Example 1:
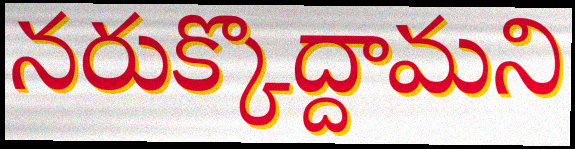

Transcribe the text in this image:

నరుక్కొద్దామని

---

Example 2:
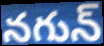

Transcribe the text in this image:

నగున్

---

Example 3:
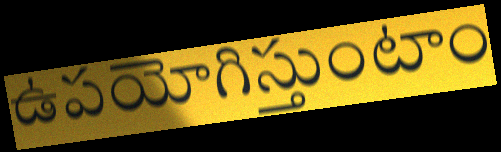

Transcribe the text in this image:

ఉపయోగిస్తుంటాం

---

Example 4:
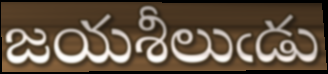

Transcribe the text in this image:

జయశీలుఁడు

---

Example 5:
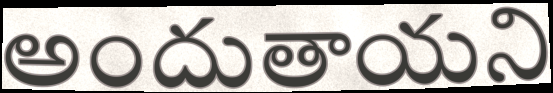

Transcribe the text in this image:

అందుతాయని